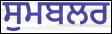
ਸੁਮਬਲਰ